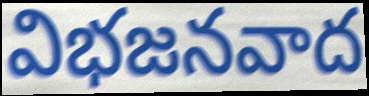
విభజనవాద